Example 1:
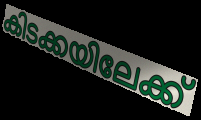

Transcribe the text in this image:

കിടക്കയിലേക്ക്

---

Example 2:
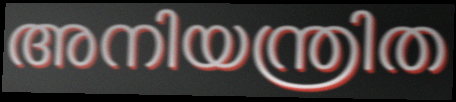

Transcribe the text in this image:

അനിയന്ത്രിത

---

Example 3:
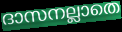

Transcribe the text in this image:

ദാസനല്ലാതെ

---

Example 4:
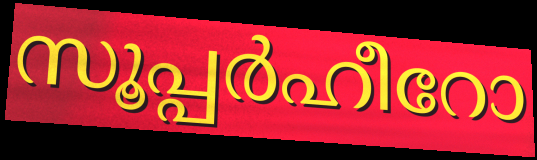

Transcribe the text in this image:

സൂപ്പർഹീറോ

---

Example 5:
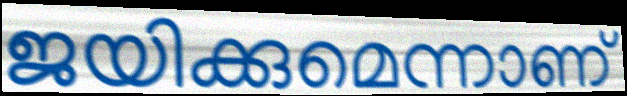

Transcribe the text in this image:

ജയിക്കുമെന്നാണ്